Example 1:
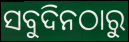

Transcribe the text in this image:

ସବୁଦିନଠାରୁ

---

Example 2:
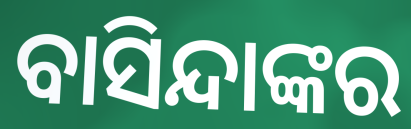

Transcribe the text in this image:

ବାସିନ୍ଦାଙ୍କର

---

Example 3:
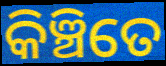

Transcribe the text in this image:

କିଞ୍ଚିତେ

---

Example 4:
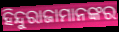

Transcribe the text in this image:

ହିନ୍ଦୁରାଜାମାନଙ୍କର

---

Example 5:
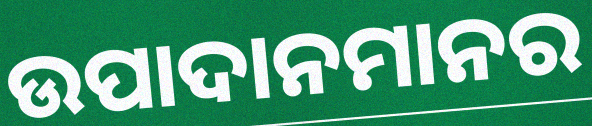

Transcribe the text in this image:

ଉପାଦାନମାନର